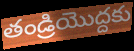
తండ్రియొద్దకు